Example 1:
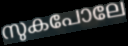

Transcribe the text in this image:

സുകപോലേ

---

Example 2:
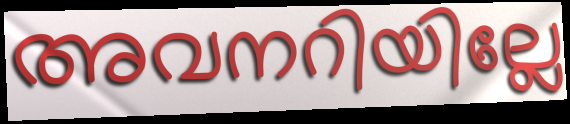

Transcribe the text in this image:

അവനറിയില്ലേ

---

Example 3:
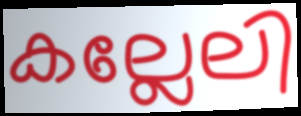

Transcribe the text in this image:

കല്ലേലി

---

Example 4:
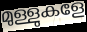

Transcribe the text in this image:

മുള്ളുകളേ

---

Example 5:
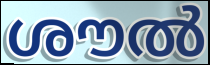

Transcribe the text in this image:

ശൗൽ